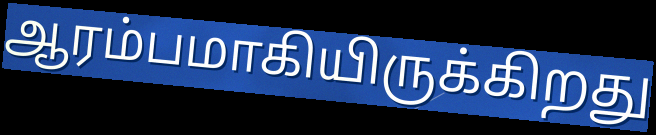
ஆரம்பமாகியிருக்கிறது